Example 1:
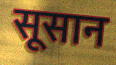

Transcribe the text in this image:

सूसान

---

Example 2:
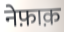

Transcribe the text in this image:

नेफ़ाक़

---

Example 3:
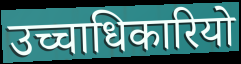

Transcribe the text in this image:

उच्चाधिकारियो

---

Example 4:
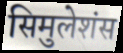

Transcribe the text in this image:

सिमुलेशंस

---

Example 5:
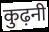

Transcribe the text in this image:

कुढ़नी